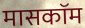
मासकॉम